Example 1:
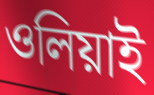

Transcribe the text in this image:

ওলিয়াই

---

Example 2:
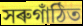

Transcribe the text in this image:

সৰুগাঁঠিত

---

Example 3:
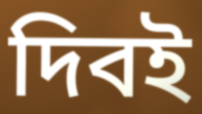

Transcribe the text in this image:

দিবই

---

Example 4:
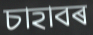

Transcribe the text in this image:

চাহাবৰ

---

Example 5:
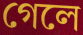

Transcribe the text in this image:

গেলে